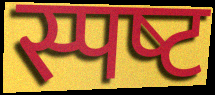
स्‍पष्‍ट